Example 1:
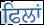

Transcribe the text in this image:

ਫਿਲਾਂ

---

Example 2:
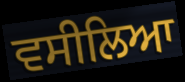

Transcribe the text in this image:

ਵਸੀਲਿਆ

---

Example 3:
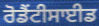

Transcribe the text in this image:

ਰੋਡੈਂਟੀਸਾਈਡ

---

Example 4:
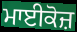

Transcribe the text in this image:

ਮਾਈਕੋਜ਼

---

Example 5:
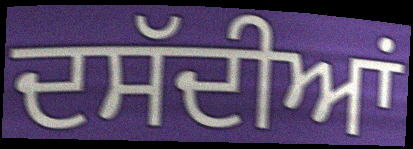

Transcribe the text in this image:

ਦਸੱਦੀਆਂ